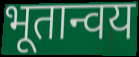
भूतान्वय